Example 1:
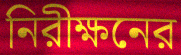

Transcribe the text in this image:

নিরীক্ষনের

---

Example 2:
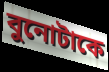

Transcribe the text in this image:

বুনোটাকে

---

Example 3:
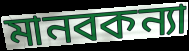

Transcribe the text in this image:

মানবকন্যা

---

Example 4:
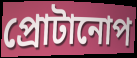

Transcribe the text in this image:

প্রোটানোপ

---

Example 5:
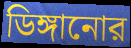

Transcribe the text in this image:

ডিঙ্গানোর